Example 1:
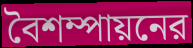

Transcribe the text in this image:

বৈশম্পায়নের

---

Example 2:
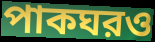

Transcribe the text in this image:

পাকঘরও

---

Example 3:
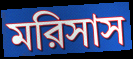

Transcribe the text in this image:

মরিসাস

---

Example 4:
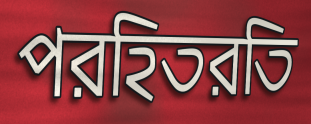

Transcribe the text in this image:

পরহিতরতি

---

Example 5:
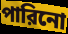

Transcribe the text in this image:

পারিনো